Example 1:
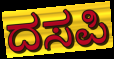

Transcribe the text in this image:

ದಸಪಿ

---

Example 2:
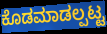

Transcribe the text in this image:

ಕೊಡಮಾಡಲ್ಪಟ್ಟ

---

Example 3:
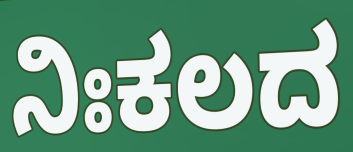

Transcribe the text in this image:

ನಿಃಕಲದ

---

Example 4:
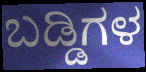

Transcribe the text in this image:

ಬಡ್ಡಿಗಳ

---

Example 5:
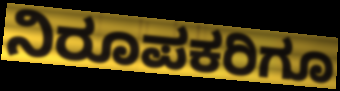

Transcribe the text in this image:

ನಿರೂಪಕರಿಗೂ